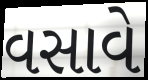
વસાવે